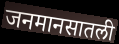
जनमानसातली